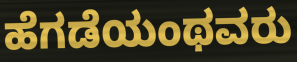
ಹೆಗಡೆಯಂಥವರು